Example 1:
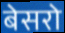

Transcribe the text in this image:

बेसरो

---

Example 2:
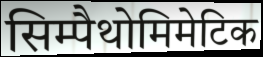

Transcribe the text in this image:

सिम्पैथोमिमेटिक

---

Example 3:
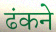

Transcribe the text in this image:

ढंकने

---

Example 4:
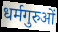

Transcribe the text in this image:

धर्मगुरुओं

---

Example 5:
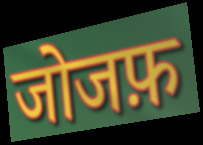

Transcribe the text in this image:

जोजफ़